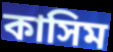
কাসিম